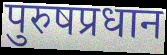
पुरुषप्रधान